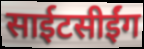
साईटसीईंग